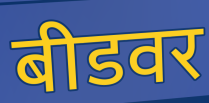
बीडवर